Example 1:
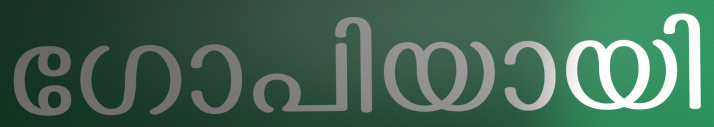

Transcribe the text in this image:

ഗോപിയായി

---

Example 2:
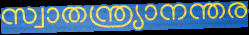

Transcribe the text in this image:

സ്വാതന്ത്ര്യാനന്തര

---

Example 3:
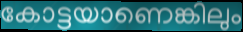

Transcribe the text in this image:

കോട്ടയാണെങ്കിലും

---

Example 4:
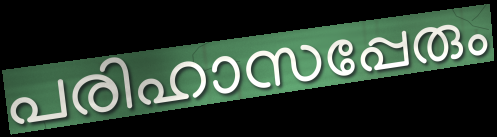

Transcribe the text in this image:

പരിഹാസപ്പേരും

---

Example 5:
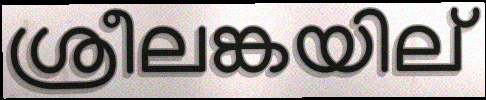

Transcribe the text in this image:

ശ്രീലങ്കയില്